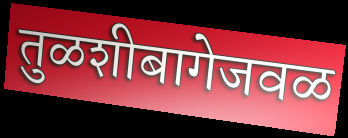
तुळशीबागेजवळ